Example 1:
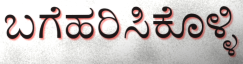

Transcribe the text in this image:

ಬಗೆಹರಿಸಿಕೊಳ್ಳಿ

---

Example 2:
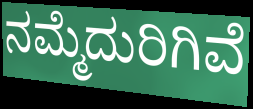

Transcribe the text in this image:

ನಮ್ಮೆದುರಿಗಿವೆ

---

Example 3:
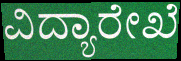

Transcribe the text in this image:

ವಿದ್ಯಾರೇಖೆ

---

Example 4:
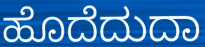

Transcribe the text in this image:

ಹೊದೆದುದಾ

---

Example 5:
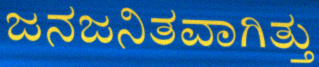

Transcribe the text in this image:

ಜನಜನಿತವಾಗಿತ್ತು